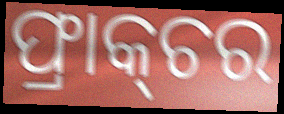
ଫ୍ରାକ୍‌ଚର